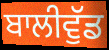
ਬਾਲੀਵੁੱਡ